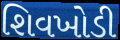
શિવખોડી